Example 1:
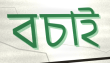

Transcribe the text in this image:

বচাই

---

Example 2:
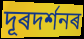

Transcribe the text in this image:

দূৰদৰ্শনৰ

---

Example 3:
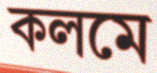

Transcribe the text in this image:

কলমে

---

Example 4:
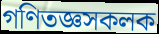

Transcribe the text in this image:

গণিতজ্ঞসকলক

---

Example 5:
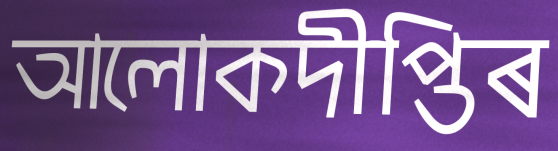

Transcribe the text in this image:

আলোকদীপ্তিৰ